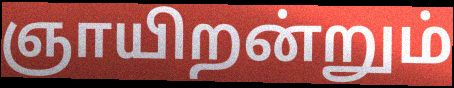
ஞாயிறன்றும்